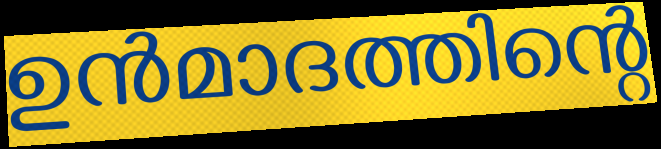
ഉൻമാദത്തിന്റെ